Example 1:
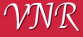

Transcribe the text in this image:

VNR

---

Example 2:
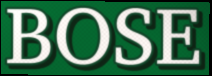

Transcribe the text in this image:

BOSE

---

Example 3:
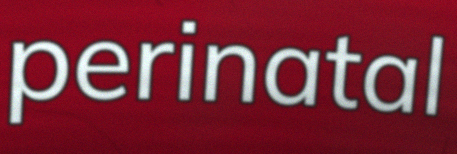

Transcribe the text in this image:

perinatal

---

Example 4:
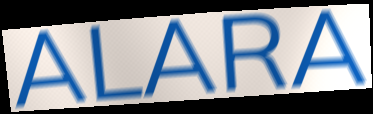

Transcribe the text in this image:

ALARA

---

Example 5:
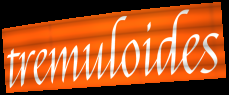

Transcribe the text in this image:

tremuloides